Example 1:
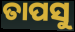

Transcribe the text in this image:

ତାପସୁ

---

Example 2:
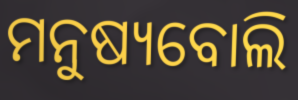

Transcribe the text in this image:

ମନୁଷ୍ୟବୋଲି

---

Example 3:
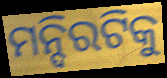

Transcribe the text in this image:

ମନ୍ଦିରଟିକୁ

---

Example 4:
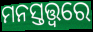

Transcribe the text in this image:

ମନସ୍ତତ୍ତ୍ଵରେ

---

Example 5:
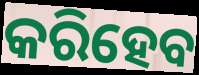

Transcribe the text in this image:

କରିହେବ